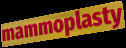
mammoplasty